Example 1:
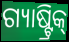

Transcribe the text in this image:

ଗ୍ୟାଷ୍ଟ୍ରିକ୍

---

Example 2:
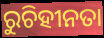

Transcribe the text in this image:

ରୁଚିହୀନତା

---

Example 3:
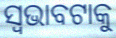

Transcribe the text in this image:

ସ୍ଵଭାବଟାକୁ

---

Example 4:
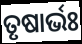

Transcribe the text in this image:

ତୃଷାର୍ଭଃ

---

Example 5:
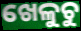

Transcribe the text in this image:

ଖେଳୁଚୁ